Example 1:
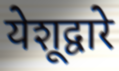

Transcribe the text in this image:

येशूद्वारे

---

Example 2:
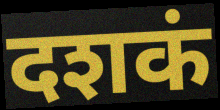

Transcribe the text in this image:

दशकं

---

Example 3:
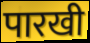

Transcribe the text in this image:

पारखी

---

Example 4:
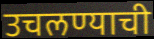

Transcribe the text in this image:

उचलण्याची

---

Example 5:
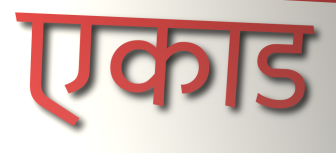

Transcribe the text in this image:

एकाड